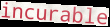
incurable